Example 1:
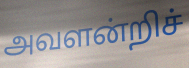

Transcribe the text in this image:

அவளன்றிச்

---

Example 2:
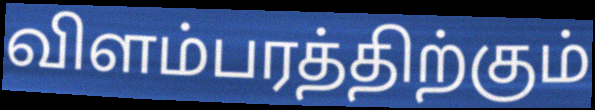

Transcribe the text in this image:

விளம்பரத்திற்கும்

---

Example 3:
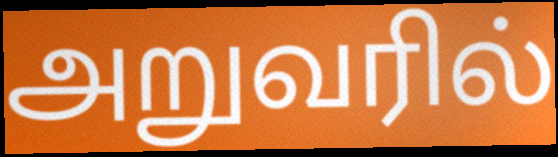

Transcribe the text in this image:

அறுவரில்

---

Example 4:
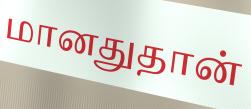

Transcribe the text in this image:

மானதுதான்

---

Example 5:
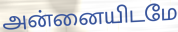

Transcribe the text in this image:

அன்னையிடமே